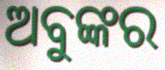
ଅବୁଙ୍କର